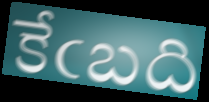
కేఁబది